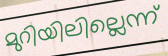
മുറിയിലില്ലെന്ന്